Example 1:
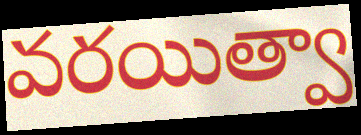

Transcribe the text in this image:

వరయిత్వా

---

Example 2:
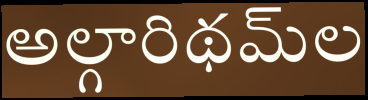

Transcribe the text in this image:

అల్గారిథమ్‌ల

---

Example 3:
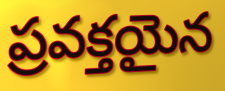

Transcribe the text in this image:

ప్రవక్తయైన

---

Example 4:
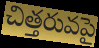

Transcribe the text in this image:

చిత్తరువపై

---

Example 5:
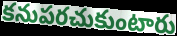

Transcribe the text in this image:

కనుపరచుకుంటారు